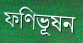
ফণিভূষন